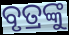
ବୃତ୍ରଙ୍କୁ